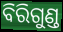
ବିରିଗୁଣ୍ଡ